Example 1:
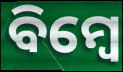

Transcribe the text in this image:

ବିମ୍ବେ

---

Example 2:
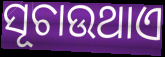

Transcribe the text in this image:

ସୂଚାଉଥାଏ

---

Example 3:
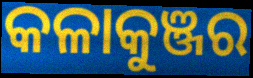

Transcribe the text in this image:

କଳାକୁଞ୍ଜର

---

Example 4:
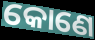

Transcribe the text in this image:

କୋଣେ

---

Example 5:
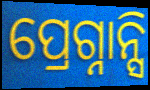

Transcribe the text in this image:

ପ୍ରେଗ୍ନାନ୍ସି